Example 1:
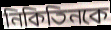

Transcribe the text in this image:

নিকিতিনকে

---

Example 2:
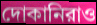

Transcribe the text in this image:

দোকানিরাও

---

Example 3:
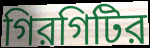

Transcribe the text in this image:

গিরগিটির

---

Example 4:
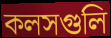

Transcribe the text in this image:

কলসগুলি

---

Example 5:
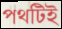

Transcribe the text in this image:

পথটিই